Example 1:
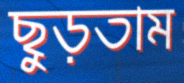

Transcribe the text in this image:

ছুড়তাম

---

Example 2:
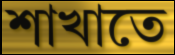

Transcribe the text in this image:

শাখাতে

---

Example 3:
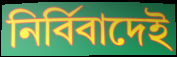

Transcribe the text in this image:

নির্বিবাদেই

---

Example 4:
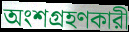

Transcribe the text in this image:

অংশগ্রহণকারী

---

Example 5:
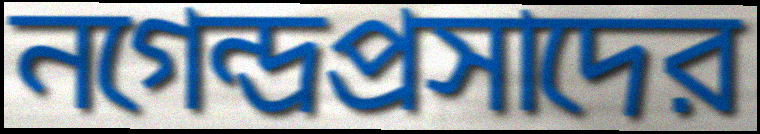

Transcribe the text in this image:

নগেন্দ্রপ্রসাদের